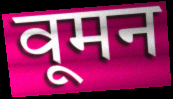
वूमन